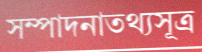
সম্পাদনাতথ্যসূত্র